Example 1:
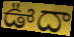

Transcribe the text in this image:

ఊదా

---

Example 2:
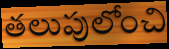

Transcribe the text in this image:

తలుపులోంచి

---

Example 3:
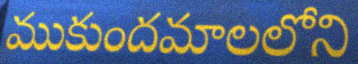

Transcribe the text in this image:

ముకుందమాలలోని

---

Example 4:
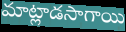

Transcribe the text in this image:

మాట్లాడసాగాయి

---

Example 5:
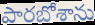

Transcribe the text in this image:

పారబోశాను